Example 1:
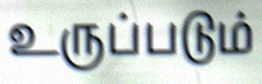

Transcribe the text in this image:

உருப்படும்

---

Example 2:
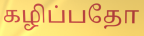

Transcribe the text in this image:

கழிப்பதோ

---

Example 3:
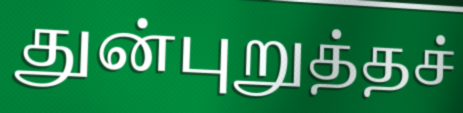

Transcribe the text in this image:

துன்புறுத்தச்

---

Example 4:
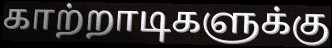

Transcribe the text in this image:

காற்றாடிகளுக்கு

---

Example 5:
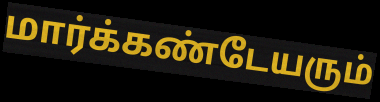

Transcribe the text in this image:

மார்க்கண்டேயரும்